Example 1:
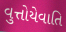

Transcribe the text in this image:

વુત્તોયેવાતિ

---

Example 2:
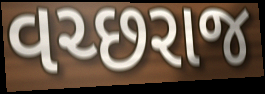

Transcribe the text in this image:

વચ્છરાજ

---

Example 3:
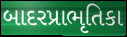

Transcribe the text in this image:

બાદરપ્રાભૃતિકા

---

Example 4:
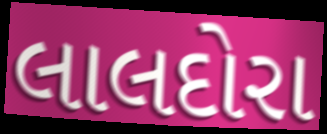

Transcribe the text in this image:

લાલદોરા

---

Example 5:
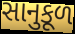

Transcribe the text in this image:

સાનુકૂળ